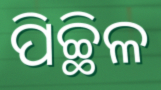
ପିଚ୍ଛିଳ